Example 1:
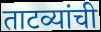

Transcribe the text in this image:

ताटव्यांची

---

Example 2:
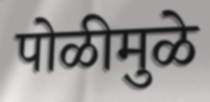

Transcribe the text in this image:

पोळीमुळे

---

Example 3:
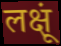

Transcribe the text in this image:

लक्षूं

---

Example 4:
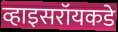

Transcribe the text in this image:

व्हाइसरॉयकडे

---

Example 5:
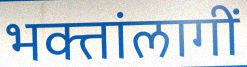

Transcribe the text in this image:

भक्तांलागीं